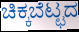
ಚಿಕ್ಕಬೆಟ್ಟದ